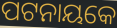
ପଟନାୟକେ